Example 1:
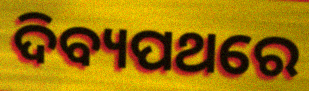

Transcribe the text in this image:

ଦିବ୍ୟପଥରେ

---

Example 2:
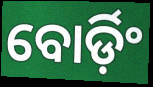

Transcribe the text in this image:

ବୋର୍ଡ଼ିଂ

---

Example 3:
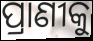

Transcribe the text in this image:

ପ୍ରାଣୀକୁ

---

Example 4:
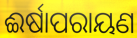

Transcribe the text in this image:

ଈର୍ଷାପରାୟଣ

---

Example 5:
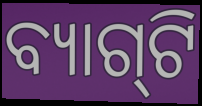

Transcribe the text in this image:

ବ୍ୟାଗ୍‌ଟି